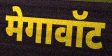
मेगावॉट